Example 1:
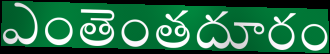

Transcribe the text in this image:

ఎంతెంతదూరం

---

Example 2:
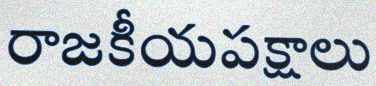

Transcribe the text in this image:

రాజకీయపక్షాలు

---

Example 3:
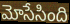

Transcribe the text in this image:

మోసేసింది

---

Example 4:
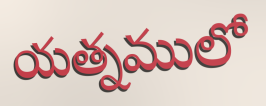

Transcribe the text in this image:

యత్నములో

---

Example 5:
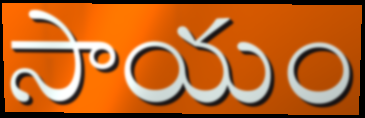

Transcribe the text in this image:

సాయం